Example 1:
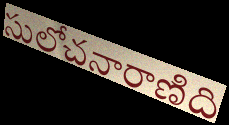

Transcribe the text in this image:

సులోచనారాణిది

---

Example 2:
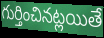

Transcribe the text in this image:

గుర్తించినట్లయితే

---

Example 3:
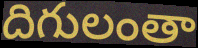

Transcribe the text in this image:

దిగులంతా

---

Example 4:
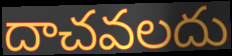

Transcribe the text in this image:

దాచవలదు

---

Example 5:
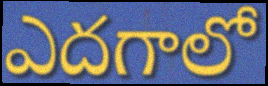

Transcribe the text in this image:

ఎదగాలో